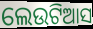
ଲେଉଟିଆସ